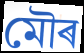
মৌৰ